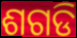
ଶଗଡି